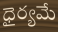
ధైర్యమే